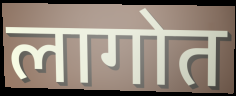
लागोत